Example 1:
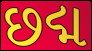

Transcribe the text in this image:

છદ્મ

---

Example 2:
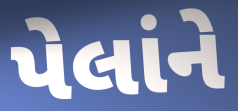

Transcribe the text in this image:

પેલાંને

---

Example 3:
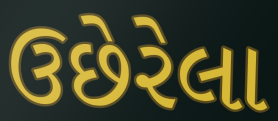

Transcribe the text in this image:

ઉછેરેલા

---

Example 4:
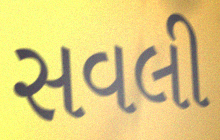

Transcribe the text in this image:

સવલી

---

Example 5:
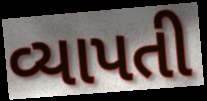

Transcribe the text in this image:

વ્યાપતી